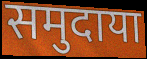
समुदाया